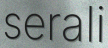
serali